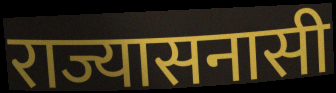
राज्यासनासी